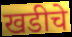
खडीचे